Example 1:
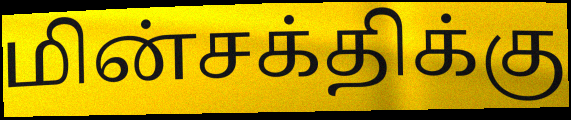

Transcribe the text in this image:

மின்சக்திக்கு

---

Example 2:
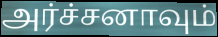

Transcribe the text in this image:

அர்ச்சனாவும்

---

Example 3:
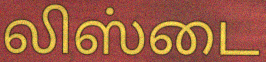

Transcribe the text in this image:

லிஸ்டை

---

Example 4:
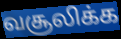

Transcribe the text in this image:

வசூலிக்க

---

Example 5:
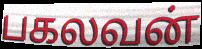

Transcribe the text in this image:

பகலவன்